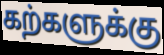
கற்களுக்கு